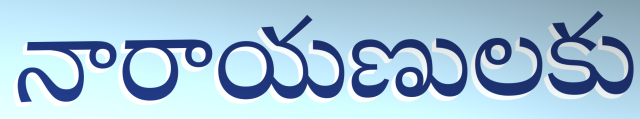
నారాయణులకు